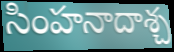
సింహనాదాశ్చ